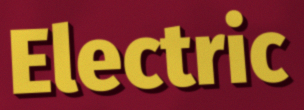
Electric